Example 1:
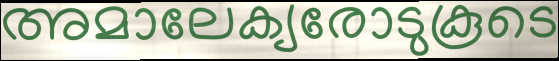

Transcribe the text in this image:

അമാലേക്യരോടുകൂടെ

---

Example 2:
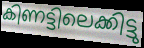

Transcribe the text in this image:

കിണട്ടിലെക്കിട്ടു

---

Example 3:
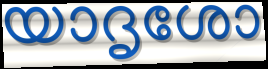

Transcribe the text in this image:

യാദൃശോ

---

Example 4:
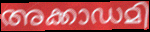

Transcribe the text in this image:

അക്കാഡമി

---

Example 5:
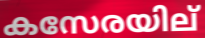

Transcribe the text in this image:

കസേരയില്